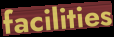
facilities